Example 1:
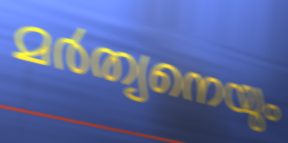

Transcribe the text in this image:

മർത്യനെയും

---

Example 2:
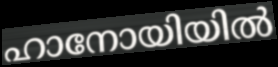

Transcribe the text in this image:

ഹാനോയിയിൽ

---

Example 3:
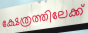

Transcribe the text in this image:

ക്ഷേത്രത്തിലേക്ക്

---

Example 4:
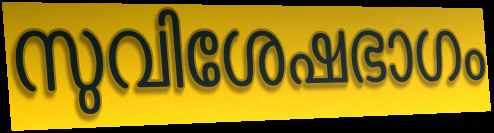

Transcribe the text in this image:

സുവിശേഷഭാഗം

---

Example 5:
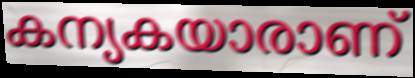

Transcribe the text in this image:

കന്യകയാരാണ്